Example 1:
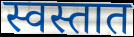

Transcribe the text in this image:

स्वस्तात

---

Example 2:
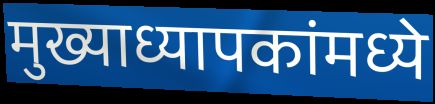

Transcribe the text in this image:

मुख्याध्यापकांमध्ये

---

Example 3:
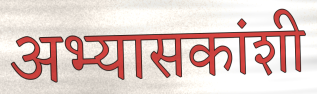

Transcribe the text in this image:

अभ्यासकांशी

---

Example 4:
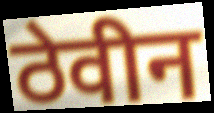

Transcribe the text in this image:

ठेवीन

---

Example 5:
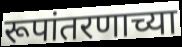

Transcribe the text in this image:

रूपांतरणाच्या